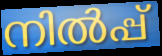
നിൽപ്പ്